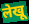
लेखू